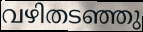
വഴിതടഞ്ഞു